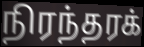
நிரந்தரக்